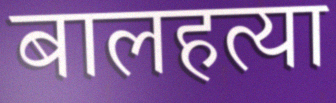
बालहत्या